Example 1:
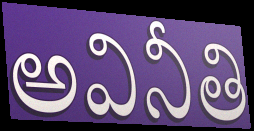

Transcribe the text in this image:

అవినీతి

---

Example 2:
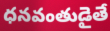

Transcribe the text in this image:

ధనవంతుడైతే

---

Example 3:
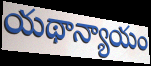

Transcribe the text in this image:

యథాన్యాయం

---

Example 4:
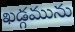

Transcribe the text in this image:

ఖడ్గమును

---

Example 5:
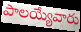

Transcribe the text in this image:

పాలయ్యేవారు